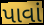
પાવાં